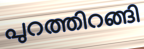
പുറത്തിറങ്ങി